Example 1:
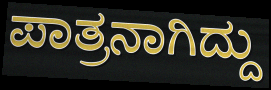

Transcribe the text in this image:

ಪಾತ್ರನಾಗಿದ್ದು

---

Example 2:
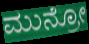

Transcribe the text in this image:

ಮುನ್ರೋ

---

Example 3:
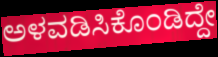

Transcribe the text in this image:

ಅಳವಡಿಸಿಕೊಂಡಿದ್ದೇ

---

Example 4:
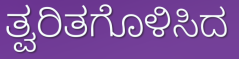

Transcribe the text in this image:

ತ್ವರಿತಗೊಳಿಸಿದ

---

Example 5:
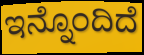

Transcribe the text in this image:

ಇನ್ನೊಂದಿದೆ